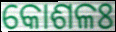
କୋଶଳଃ